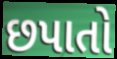
છપાતો